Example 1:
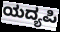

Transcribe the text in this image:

ಯದ್ಯಪಿ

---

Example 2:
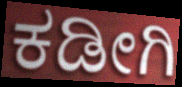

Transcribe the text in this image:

ಕಡೀಗಿ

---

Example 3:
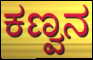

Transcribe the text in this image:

ಕಣ್ವನ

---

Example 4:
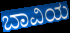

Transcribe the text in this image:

ಬಾವಿಯ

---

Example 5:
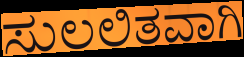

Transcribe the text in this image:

ಸುಲಲಿತವಾಗಿ